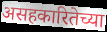
असहकारितेच्या